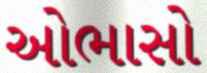
ઓભાસો